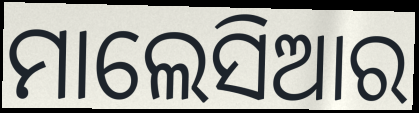
ମାଲେସିଆର